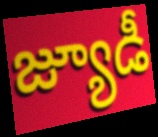
జ్యూడీ